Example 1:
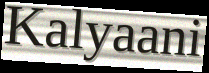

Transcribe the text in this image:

Kalyaani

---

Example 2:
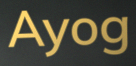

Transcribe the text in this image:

Ayog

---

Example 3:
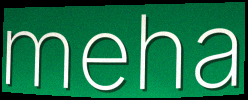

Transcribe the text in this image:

meha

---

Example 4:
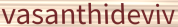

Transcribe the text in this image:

vasanthideviv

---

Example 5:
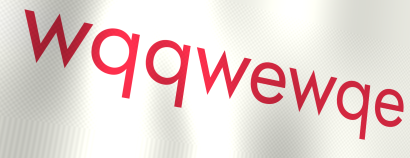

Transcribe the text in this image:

wqqwewqe